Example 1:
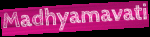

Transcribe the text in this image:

Madhyamavati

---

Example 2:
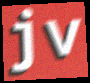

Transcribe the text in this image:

jv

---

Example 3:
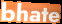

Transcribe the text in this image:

bhate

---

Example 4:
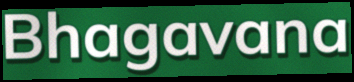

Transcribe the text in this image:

Bhagavana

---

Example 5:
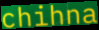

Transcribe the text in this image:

chihna